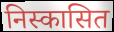
निस्कासित